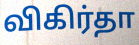
விகிர்தா